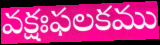
వక్షఃఫలకము